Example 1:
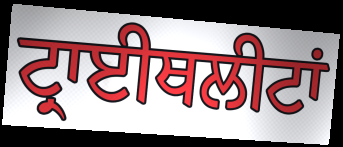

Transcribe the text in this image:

ਟ੍ਰਾਈਥਲੀਟਾਂ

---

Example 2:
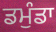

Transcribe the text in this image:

ਡਮੁੰਡਾ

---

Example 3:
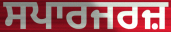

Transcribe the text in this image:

ਸਪਾਰਜਰਜ਼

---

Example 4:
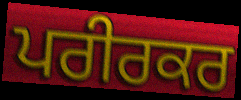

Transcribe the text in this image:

ਪਰੀਰਕਰ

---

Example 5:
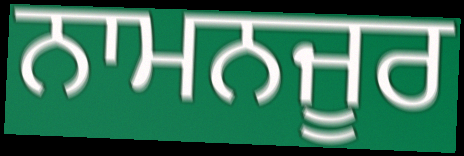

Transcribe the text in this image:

ਨਾਮਨਜੂਰ